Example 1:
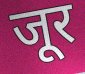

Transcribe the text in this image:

जूर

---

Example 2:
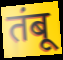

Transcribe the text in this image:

तंबू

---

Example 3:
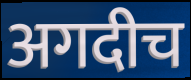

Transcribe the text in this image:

अगदीच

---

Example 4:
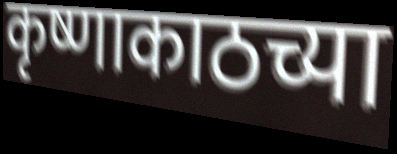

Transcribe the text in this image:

कृष्णाकाठच्या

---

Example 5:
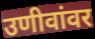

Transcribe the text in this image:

उणीवांवर